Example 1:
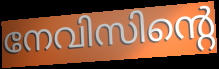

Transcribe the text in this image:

നേവിസിന്റെ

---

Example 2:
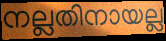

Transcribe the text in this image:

നല്ലതിനായല്ല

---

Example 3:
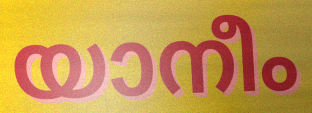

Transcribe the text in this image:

യാനീം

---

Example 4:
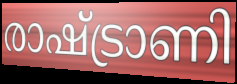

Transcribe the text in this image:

രാഷ്ട്രാണി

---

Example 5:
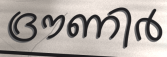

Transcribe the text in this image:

ദ്രൗണിർ